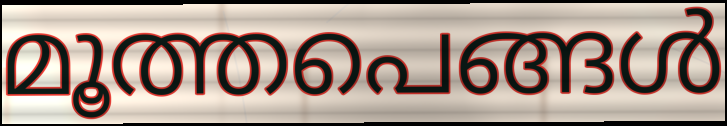
മൂത്തപെങ്ങൾ